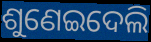
ଶୁଣେଇଦେଲି